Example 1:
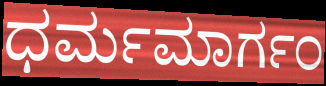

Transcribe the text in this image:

ಧರ್ಮಮಾರ್ಗಂ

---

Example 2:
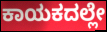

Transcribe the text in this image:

ಕಾಯಕದಲ್ಲೇ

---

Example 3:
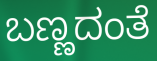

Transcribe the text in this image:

ಬಣ್ಣದಂತೆ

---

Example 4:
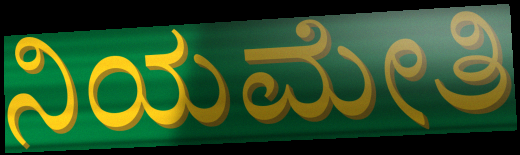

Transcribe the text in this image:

ನಿಯಮೇತಿ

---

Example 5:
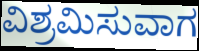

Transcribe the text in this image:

ವಿಶ್ರಮಿಸುವಾಗ